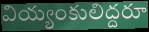
వియ్యంకులిద్దరూ